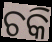
ଚକି